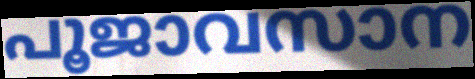
പൂജാവസാന